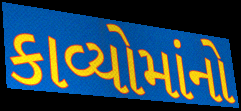
કાવ્યોમાંનો